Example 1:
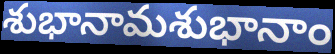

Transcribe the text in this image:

శుభానామశుభానాం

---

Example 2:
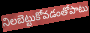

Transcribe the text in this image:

నిలబెట్టుకోవడంతోపాటు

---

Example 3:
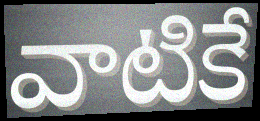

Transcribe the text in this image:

వాటికే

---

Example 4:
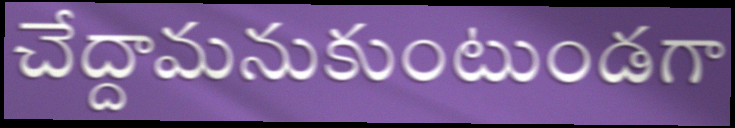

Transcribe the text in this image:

చేద్దామనుకుంటుండగా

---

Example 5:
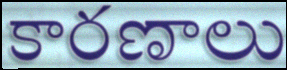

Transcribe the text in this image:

కారణాలు